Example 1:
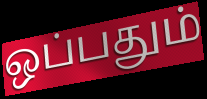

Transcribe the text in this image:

ஒப்பதும்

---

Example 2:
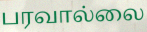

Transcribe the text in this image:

பரவால்லை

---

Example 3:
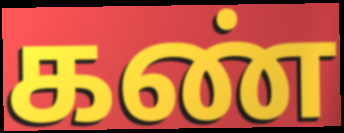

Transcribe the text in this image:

கண்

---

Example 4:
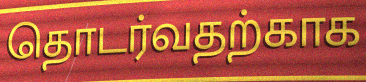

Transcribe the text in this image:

தொடர்வதற்காக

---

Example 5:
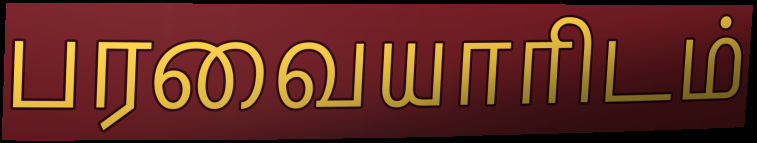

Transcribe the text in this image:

பரவையாரிடம்